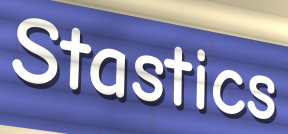
Stastics